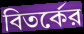
বিতর্কের